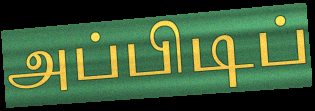
அப்பிடிப்